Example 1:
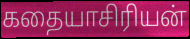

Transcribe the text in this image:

கதையாசிரியன்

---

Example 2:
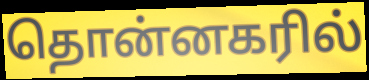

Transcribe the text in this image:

தொன்னகரில்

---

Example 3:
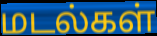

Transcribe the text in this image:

மடல்கள்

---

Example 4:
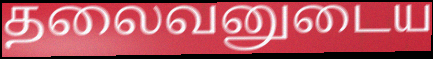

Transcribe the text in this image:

தலைவனுடைய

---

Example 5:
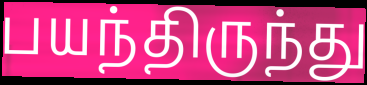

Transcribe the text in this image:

பயந்திருந்து